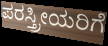
ಪರಸ್ತ್ರೀಯರಿಗೆ